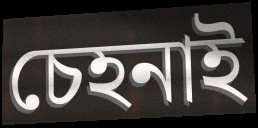
চেহনাই